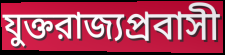
যুক্তরাজ্যপ্রবাসী